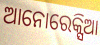
ଆନୋରେକ୍ସିଆ